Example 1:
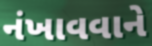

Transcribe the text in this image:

નંખાવવાને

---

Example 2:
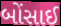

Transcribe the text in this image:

બોંસાઈ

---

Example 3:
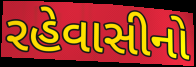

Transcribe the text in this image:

રહેવાસીનો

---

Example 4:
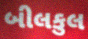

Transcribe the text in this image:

બીલકુલ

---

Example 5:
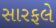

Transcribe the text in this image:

સારફલે